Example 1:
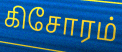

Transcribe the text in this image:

கிசோரம்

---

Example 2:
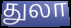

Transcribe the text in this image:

துலா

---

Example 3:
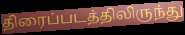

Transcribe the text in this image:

திரைப்படத்திலிருந்து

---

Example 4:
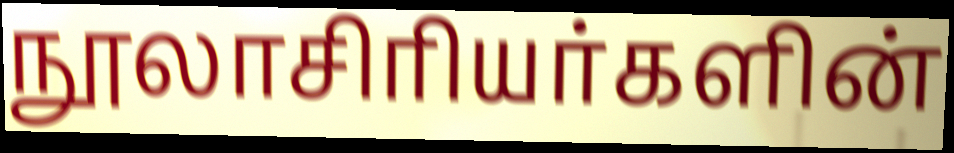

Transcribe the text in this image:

நூலாசிரியர்களின்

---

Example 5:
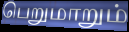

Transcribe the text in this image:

பெறுமாறும்